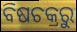
ବିଷଚକ୍ରରୁ